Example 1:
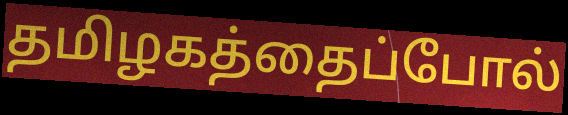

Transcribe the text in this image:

தமிழகத்தைப்போல்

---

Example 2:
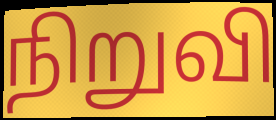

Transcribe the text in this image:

நிறுவி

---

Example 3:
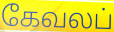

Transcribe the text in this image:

கேவலப்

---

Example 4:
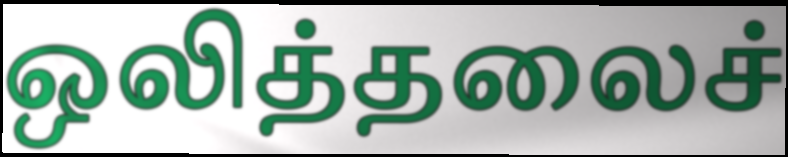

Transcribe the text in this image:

ஒலித்தலைச்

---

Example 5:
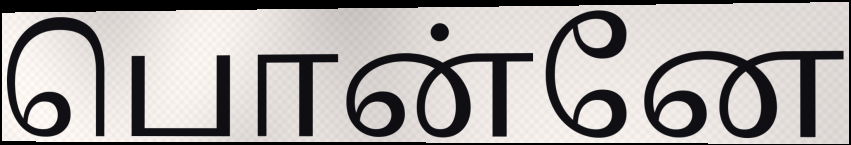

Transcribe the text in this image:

பொன்னே